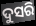
ଦୁସରି